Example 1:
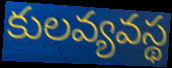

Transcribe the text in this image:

కులవ్యవస్థ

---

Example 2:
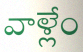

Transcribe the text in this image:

వాళ్లేం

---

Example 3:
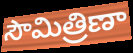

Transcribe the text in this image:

సౌమిత్రిణా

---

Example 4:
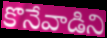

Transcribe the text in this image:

కొనేవాడిని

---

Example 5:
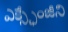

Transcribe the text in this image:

ఎక్స్ఛేంజీని